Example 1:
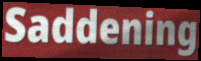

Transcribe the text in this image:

Saddening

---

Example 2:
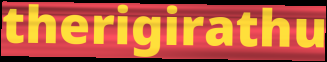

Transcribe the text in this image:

therigirathu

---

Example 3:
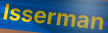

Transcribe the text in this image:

Isserman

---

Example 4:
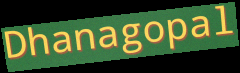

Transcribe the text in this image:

Dhanagopal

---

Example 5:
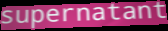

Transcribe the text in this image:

supernatant